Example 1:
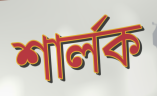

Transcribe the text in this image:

শার্লক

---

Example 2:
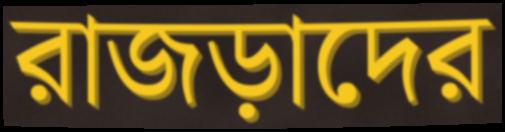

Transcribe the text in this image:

রাজড়াদের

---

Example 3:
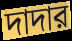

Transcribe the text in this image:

দাদার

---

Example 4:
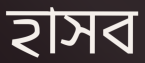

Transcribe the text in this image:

হাসব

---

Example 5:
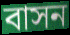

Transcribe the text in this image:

বাসন